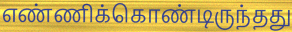
எண்ணிக்கொண்டிருந்தது